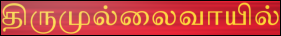
திருமுல்லைவாயில்